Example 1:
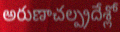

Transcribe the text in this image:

అరుణాచల్ప్రదేశ్లో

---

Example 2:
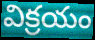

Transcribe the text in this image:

విక్రయం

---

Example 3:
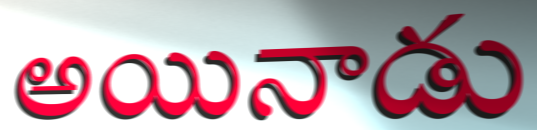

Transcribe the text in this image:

అయినాడు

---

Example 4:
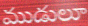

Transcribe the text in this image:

ముడులూ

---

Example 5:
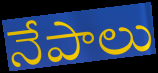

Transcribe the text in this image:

నేపాలు